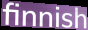
finnish